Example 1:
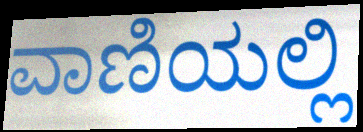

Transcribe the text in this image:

ವಾಣಿಯಲ್ಲಿ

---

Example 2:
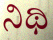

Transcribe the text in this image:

ನಿಥಿ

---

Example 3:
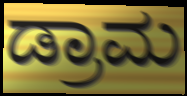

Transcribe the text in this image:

ಡ್ರಾಮ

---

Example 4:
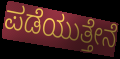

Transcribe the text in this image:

ಪಡೆಯುತ್ತೇನೆ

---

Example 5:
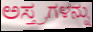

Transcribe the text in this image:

ಅಸ್ತ್ರಗಳನ್ನು